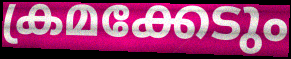
ക്രമക്കേടും